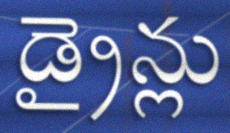
డ్రైన్లు